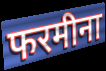
फरमीना